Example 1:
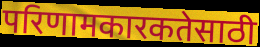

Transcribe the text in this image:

परिणामकारकतेसाठी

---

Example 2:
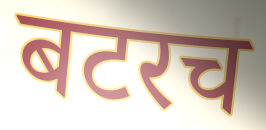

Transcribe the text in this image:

बटरच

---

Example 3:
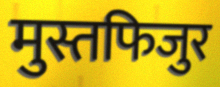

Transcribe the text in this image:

मुस्तफिजुर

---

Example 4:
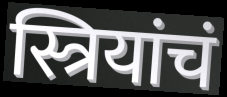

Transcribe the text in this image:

स्त्रियांचं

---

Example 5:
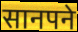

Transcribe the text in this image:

सानपने